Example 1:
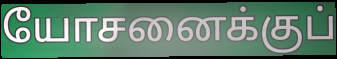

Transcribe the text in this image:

யோசனைக்குப்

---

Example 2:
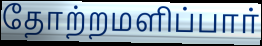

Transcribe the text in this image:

தோற்றமளிப்பார்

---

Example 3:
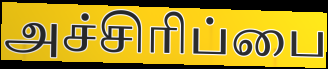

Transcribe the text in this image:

அச்சிரிப்பை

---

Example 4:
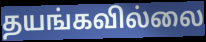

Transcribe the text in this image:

தயங்கவில்லை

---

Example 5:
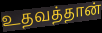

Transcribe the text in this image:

உதவத்தான்